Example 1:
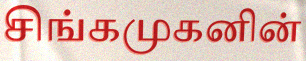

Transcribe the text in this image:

சிங்கமுகனின்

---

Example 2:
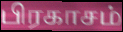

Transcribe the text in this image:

பிரகாசம்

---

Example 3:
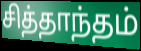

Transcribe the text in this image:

சித்தாந்தம்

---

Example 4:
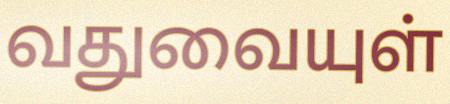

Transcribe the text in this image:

வதுவையுள்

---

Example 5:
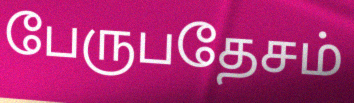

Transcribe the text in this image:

பேருபதேசம்